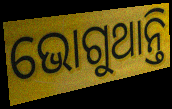
ଭୋଗୁଥାନ୍ତି